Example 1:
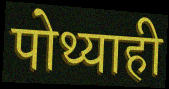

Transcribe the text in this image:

पोथ्याही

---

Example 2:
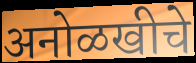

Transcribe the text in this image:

अनोळखीचे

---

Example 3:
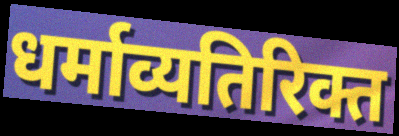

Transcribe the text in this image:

धर्माव्यतिरिक्त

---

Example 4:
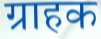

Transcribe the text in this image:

ग्राहक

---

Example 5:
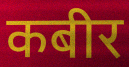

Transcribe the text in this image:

कबीर